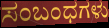
ಸಂಬಂಧಗಳು